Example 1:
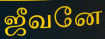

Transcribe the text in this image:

ஜீவனே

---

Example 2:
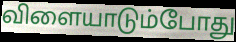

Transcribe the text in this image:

விளையாடும்போது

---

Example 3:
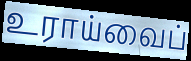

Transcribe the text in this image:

உராய்வைப்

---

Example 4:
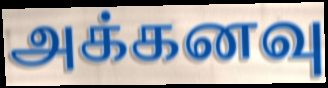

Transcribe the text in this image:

அக்கனவு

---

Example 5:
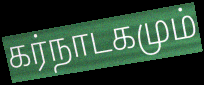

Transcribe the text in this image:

கர்நாடகமும்